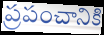
ప్రపంచానికి